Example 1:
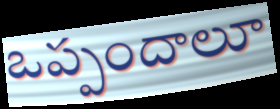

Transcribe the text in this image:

ఒప్పందాలూ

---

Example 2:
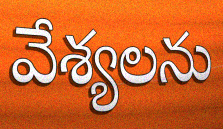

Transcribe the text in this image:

వేశ్యలను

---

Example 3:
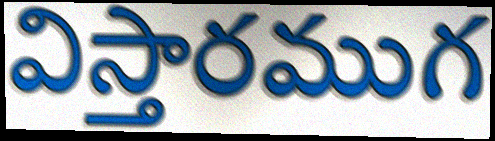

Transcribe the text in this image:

విస్తారముగ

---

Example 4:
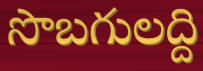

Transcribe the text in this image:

సొబగులద్ది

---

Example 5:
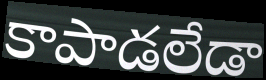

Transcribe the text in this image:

కాపాడలేడా